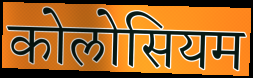
कोलोसियम